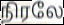
நிரலே